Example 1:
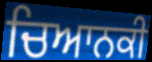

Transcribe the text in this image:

ਚਿਆਨਕੀ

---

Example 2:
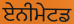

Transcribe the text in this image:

ਏਨੀਮੇਟਡ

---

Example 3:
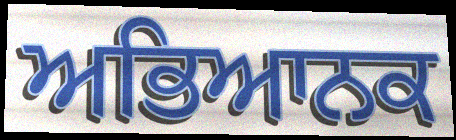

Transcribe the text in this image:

ਅਭਿਆਨਕ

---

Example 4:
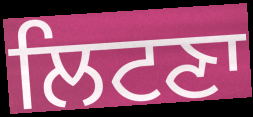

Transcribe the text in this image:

ਲਿਟਣਾ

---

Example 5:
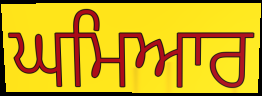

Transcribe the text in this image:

ਘਮਿਆਰ